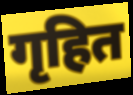
गृहित